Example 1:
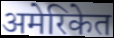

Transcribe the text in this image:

अमेरिकेत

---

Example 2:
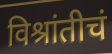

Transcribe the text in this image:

विश्रांतीचं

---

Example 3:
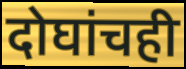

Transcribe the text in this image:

दोघांचही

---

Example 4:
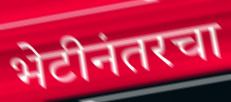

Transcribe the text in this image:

भेटीनंतरचा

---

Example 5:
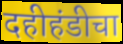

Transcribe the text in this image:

दहीहंडीचा